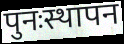
पुनःस्थापन